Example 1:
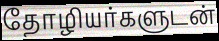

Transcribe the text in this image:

தோழியர்களுடன்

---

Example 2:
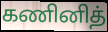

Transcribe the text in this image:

கணினித்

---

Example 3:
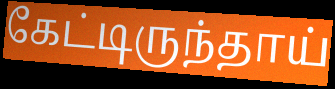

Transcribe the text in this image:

கேட்டிருந்தாய்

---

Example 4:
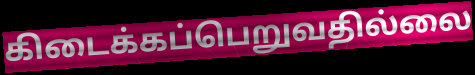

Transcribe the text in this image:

கிடைக்கப்பெறுவதில்லை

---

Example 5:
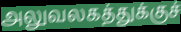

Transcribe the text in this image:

அலுவலகத்துக்குச்